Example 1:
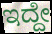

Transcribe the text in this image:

ಇದ್ದೇ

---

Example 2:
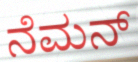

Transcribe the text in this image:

ನೆಮನ್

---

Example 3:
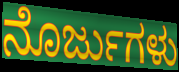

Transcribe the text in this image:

ನೊರ್ಜುಗಳು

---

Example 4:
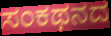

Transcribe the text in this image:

ಸಂಕಥನದ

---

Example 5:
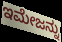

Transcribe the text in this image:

ಇಮೇಜನ್ನು